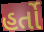
હર્તો